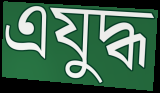
এযুদ্ধ